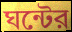
ঘন্টের